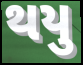
થયુ